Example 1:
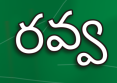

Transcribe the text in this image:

రవ్వ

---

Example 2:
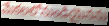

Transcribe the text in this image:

మేకలలోనుండియైనను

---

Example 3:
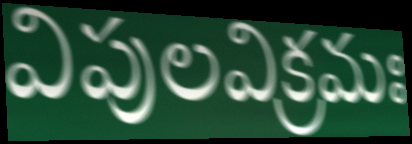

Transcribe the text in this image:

విపులవిక్రమః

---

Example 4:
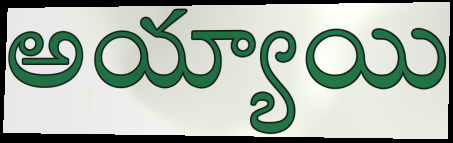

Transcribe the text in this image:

అయ్యాయి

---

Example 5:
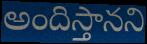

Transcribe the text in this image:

అందిస్తానని